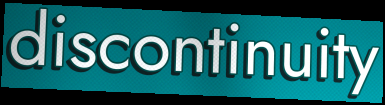
discontinuity